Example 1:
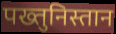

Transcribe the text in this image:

पख्तुनिस्तान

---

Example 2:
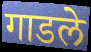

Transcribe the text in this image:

गाडले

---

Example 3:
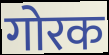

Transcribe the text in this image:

गोरक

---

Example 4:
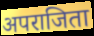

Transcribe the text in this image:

अपराजिता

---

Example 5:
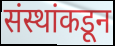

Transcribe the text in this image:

संस्थांकडून